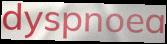
dyspnoea